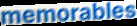
memorables